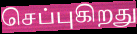
செப்புகிறது